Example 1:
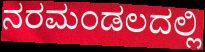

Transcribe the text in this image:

ನರಮಂಡಲದಲ್ಲಿ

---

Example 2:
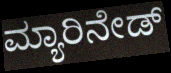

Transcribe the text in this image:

ಮ್ಯಾರಿನೇಡ್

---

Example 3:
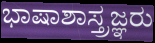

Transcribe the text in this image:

ಭಾಷಾಶಾಸ್ತ್ರಜ್ಞರು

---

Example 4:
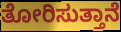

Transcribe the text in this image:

ತೋರಿಸುತ್ತಾನೆ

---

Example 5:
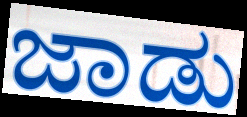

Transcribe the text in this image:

ಜಾಡು